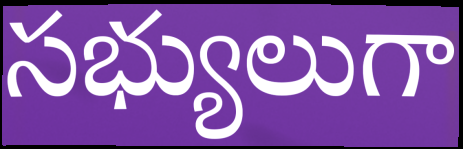
సభ్యులుగా